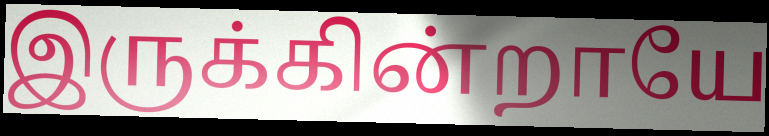
இருக்கின்றாயே